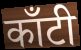
काँटी